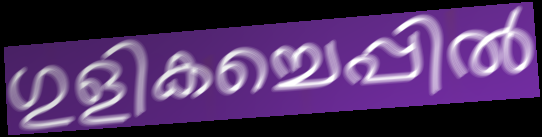
ഗുളികച്ചെപ്പിൽ